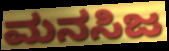
ಮನಸಿಜ